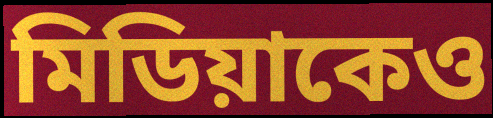
মিডিয়াকেও